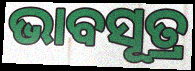
ଭାବସୂତ୍ର